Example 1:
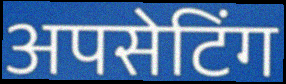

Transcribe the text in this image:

अपसेटिंग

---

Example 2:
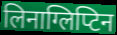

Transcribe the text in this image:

लिनाग्लिप्टिन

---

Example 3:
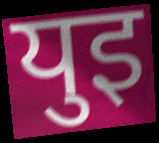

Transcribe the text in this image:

युइ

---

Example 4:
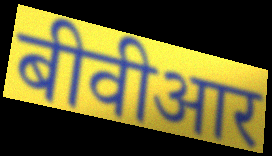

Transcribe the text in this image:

बीवीआर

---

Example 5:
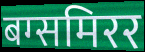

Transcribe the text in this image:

बग्समिरर